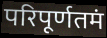
परिपूर्णतमं